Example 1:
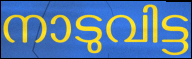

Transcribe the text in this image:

നാടുവിട്ട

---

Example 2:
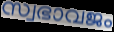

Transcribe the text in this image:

സ്വഭാവജം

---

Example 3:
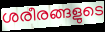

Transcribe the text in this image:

ശരീരങ്ങളുടെ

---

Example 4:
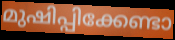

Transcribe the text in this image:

മുഷിപ്പിക്കേണ്ടാ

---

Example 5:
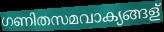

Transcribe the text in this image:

ഗണിതസമവാക്യങ്ങള്